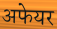
अफेयर